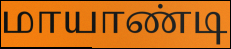
மாயாண்டி